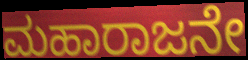
ಮಹಾರಾಜನೇ